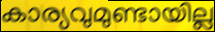
കാര്യവുമുണ്ടായില്ല